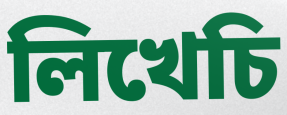
লিখেচি